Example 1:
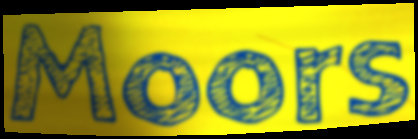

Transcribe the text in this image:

Moors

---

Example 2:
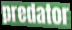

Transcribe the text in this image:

predator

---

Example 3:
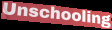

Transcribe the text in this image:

Unschooling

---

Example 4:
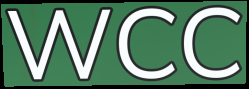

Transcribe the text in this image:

WCC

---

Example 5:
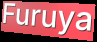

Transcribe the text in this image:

Furuya